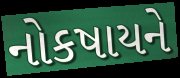
નોકષાયને